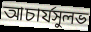
আচার্যসুলভ